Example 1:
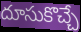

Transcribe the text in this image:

దూసుకొచ్చే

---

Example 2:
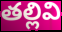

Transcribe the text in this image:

తల్లివి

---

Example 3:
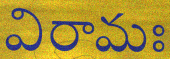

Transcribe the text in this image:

విరామః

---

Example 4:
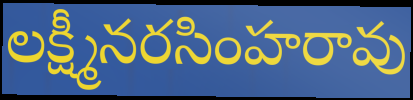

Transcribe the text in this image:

లక్ష్మీనరసింహరావు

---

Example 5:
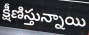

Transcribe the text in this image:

క్షీణిస్తున్నాయి